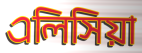
এলিসিয়া